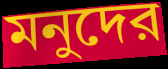
মনুদের